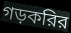
গড়করির